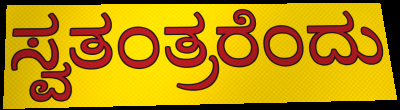
ಸ್ವತಂತ್ರರೆಂದು